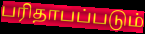
பரிதாபப்படும்